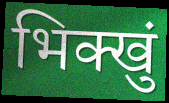
भिक्खुं